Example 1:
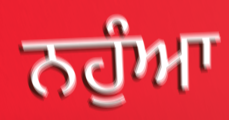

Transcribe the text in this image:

ਨਹੁੰਆ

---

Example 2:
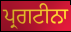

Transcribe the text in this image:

ਪ੍ਰਗਟੀਨਾ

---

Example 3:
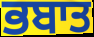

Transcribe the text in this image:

ਭਬਾਤ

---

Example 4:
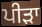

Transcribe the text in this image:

ਪੀੜਾ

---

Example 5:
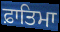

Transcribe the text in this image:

ਫ਼ਾਤਿਮਾ